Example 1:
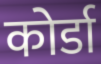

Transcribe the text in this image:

कोर्डा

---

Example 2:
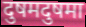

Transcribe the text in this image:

दुषमदुषमा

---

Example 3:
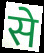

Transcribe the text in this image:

से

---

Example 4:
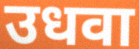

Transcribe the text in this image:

उधवा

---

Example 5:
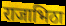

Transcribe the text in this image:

राजाभिठा